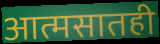
आत्मसातही